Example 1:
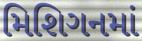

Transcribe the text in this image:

મિશિગનમાં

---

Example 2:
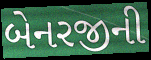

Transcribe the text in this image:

બેનરજીની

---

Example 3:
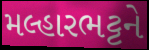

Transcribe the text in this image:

મલ્હારભટ્ટને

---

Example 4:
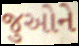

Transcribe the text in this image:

જુઓને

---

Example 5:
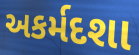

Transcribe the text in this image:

અકર્મદશા